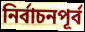
নির্বাচনপূর্ব